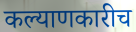
कल्याणकारीच